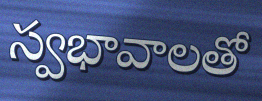
స్వభావాలతో